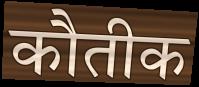
कौतीक